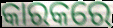
କାରକରେ